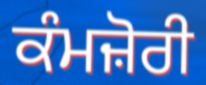
ਕੰਮਜ਼ੋਰੀ